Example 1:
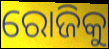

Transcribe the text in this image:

ରୋଜିକୁ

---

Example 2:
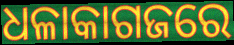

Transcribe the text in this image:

ଧଳାକାଗଜରେ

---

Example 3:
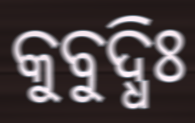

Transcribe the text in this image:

କୁବୁଦ୍ଧିଃ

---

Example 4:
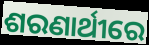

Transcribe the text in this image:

ଶରଣାର୍ଥୀରେ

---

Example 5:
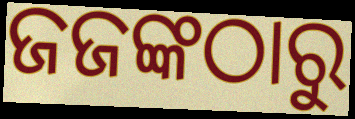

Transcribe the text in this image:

ଜଜଙ୍କଠାରୁ